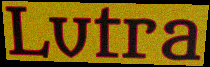
Lutra